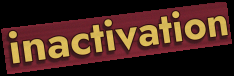
inactivation